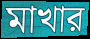
মাখার